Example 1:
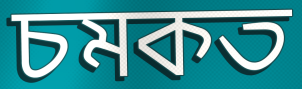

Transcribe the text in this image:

চমকত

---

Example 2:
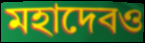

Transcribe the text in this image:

মহাদেবও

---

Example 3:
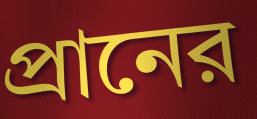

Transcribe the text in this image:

প্রানের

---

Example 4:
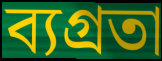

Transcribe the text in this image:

ব্যগ্রতা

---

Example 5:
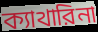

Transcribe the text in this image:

ক্যাথারিনা